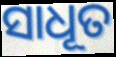
ସାଧୂତ